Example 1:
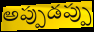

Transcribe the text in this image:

అప్పుడప్పు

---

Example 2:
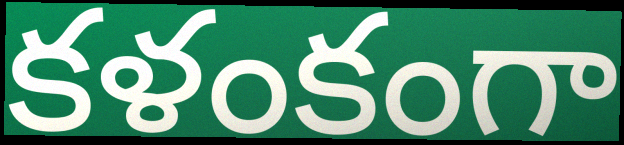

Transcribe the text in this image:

కళంకంగా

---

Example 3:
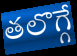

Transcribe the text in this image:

తలొగ్గే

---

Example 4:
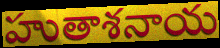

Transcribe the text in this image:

హుతాశనాయ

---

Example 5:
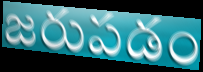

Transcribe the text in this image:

జరుపడం